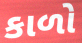
કાળો